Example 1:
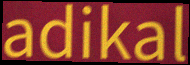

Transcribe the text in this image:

adikal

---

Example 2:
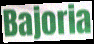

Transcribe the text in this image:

Bajoria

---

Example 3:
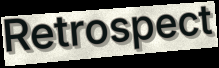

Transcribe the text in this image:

Retrospect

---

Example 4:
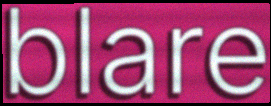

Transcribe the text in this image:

blare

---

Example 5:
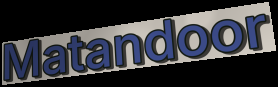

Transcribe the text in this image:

Matandoor